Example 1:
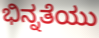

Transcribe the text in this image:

ಭಿನ್ನತೆಯು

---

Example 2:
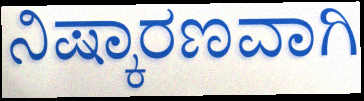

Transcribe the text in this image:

ನಿಷ್ಕಾರಣವಾಗಿ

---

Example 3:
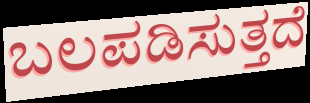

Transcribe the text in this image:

ಬಲಪಡಿಸುತ್ತದೆ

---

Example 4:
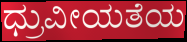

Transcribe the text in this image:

ಧ್ರುವೀಯತೆಯ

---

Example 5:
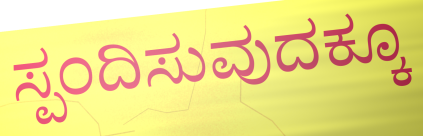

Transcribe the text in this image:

ಸ್ಪಂದಿಸುವುದಕ್ಕೂ